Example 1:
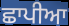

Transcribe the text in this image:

ਛਾਪੀਆ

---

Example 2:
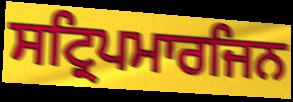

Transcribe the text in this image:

ਸਟ੍ਰਿਪਮਾਰਜਿਨ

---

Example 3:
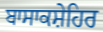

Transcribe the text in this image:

ਬਾਸਾਕਸ਼ੇਹਿਰ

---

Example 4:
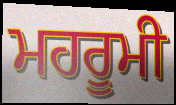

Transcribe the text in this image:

ਮਹਰੂਮੀ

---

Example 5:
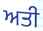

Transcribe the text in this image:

ਅਤੀ